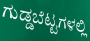
ಗುಡ್ಡಬೆಟ್ಟಗಳಲ್ಲಿ